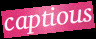
captious